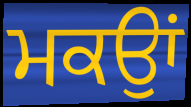
ਮਕਉਾਂ